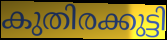
കുതിരക്കുട്ടി